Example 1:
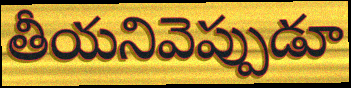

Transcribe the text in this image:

తీయనివెప్పుడూ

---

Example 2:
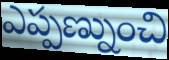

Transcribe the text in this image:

ఎప్పణ్నుంచి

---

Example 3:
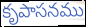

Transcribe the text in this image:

కృపాసనము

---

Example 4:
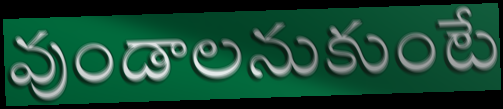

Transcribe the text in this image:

వుండాలనుకుంటే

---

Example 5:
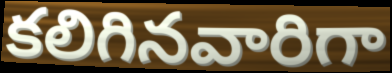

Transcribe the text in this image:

కలిగినవారిగా